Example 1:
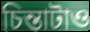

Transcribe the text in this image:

চিন্তাটাও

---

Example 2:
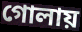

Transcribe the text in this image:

গোলায়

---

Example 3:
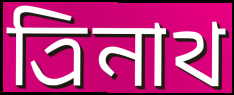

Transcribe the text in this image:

ত্রিনাথ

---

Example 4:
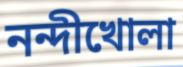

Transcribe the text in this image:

নন্দীখোলা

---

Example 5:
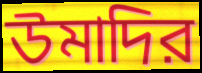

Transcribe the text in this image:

উমাদির